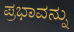
ಪ್ರಭಾವನ್ನು